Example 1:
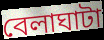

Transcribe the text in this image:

বেলাঘাটা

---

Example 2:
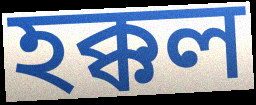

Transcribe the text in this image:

হক্কল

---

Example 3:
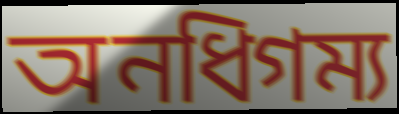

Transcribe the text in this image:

অনধিগম্য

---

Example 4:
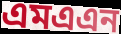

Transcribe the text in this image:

এমএএন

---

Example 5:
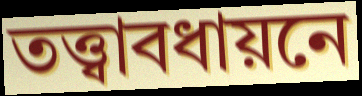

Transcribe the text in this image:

তত্ত্বাবধায়নে